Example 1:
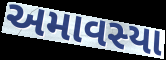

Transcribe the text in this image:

અમાવસ્યા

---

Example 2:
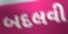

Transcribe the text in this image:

બદલવી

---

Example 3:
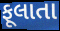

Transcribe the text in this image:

ફૂલાતા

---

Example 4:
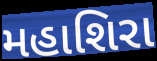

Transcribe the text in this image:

મહાશિરા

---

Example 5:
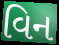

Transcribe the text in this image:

વિન